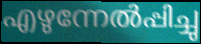
എഴുന്നേൽപ്പിച്ചു